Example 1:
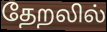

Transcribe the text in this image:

தேறலில்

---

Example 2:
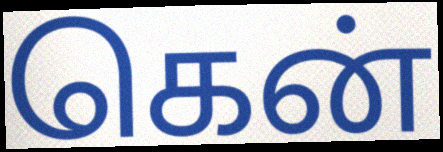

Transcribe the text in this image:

கென்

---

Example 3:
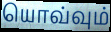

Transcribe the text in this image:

யொவ்வும்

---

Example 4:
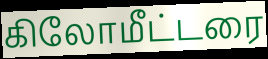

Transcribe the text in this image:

கிலோமீட்டரை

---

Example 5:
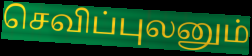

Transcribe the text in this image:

செவிப்புலனும்